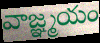
వాజ్ఞ్మయం